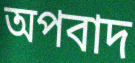
অপবাদ